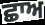
ਛਾਅ